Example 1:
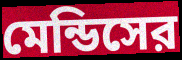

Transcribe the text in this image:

মেন্ডিসের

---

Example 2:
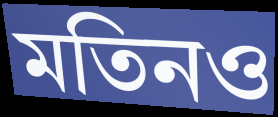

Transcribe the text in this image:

মতিনও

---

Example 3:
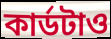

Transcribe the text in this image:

কার্ডটাও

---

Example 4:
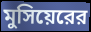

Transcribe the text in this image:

মুসিয়েরের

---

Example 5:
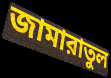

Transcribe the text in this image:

জামারাতুল